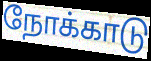
நோக்காடு